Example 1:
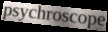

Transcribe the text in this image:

psychroscope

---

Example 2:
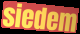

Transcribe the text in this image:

siedem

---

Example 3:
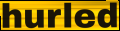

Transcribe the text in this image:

hurled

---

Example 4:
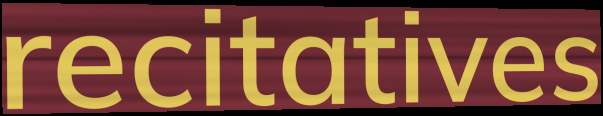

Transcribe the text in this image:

recitatives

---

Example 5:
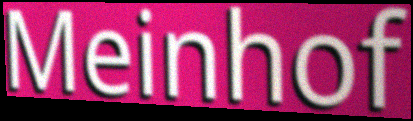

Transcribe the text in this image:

Meinhof